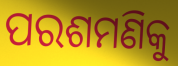
ପରଶମଣିକୁ